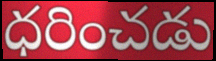
ధరించడు